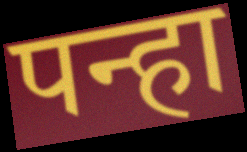
पन्हा